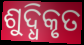
ଶୁଦ୍ଧିକୃତ